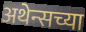
अथेन्सच्या